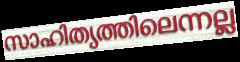
സാഹിത്യത്തിലെന്നല്ല